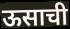
ऊसाची